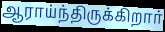
ஆராய்ந்திருக்கிறார்